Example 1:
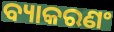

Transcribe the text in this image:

ବ୍ୟାକରଣଂ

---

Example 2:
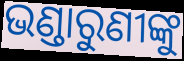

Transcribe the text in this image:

ଭଣ୍ଡାରୁଣୀଙ୍କୁ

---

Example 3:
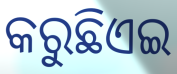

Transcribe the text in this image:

କରୁଛିଏଇ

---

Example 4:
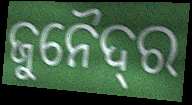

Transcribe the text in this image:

ଜୁନୈଦ୍‌ର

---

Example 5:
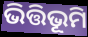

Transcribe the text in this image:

ଭିତ୍ତିଭୂମି